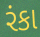
રંકા